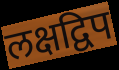
लक्षद्विप